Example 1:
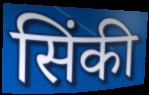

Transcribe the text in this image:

सिंकी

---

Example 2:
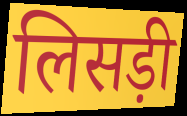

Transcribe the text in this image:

लिसड़ी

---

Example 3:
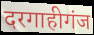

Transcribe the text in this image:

दरगाहीगंज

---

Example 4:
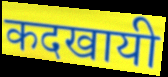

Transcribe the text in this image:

कदखायी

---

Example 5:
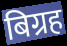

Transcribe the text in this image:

बिग्रह